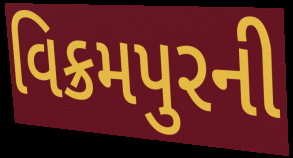
વિક્રમપુરની